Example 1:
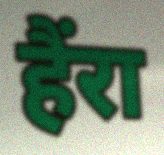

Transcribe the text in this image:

हैंरा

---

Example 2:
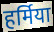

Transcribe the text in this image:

हर्मिया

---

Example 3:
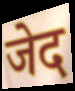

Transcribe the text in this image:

जेद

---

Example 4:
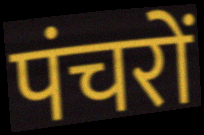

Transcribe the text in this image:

पंचरों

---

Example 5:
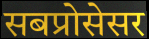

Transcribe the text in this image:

सबप्रोसेसर